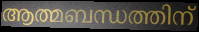
ആത്മബന്ധത്തിന്